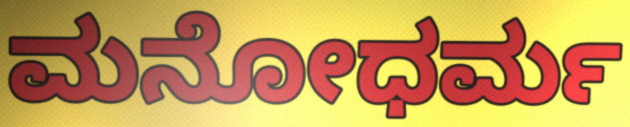
ಮನೋಧರ್ಮ